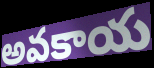
అవకాయ